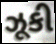
ઝૂકી